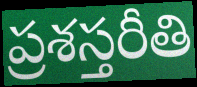
ప్రశస్తరీతి